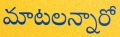
మాటలన్నారో